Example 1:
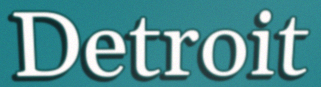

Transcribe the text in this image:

Detroit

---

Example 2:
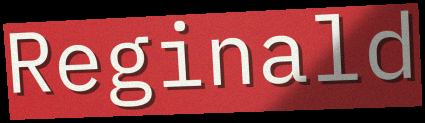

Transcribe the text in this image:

Reginald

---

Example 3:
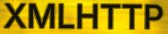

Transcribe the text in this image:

XMLHTTP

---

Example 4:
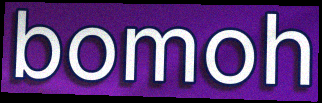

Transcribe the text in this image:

bomoh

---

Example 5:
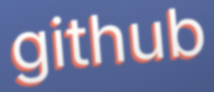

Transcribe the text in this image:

github